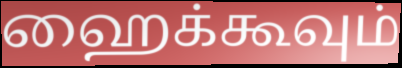
ஹைக்கூவும்